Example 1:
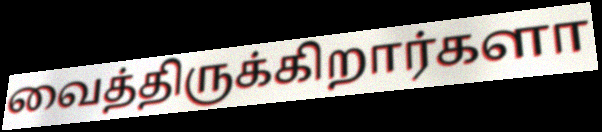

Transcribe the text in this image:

வைத்திருக்கிறார்களா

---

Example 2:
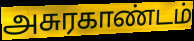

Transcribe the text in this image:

அசுரகாண்டம்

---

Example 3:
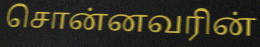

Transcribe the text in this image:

சொன்னவரின்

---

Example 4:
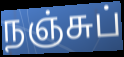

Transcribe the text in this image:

நஞ்சுப்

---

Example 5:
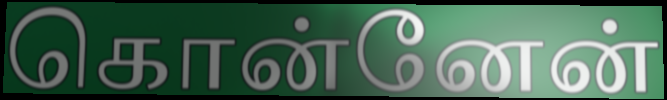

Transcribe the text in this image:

கொன்னேன்